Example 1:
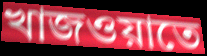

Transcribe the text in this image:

খাজওয়াতে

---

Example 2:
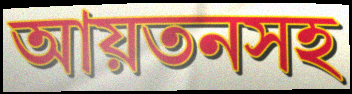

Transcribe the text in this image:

আয়তনসহ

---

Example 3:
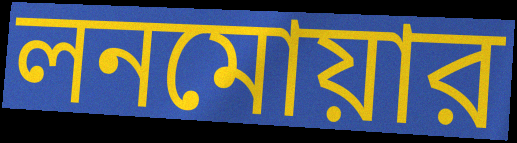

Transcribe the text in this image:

লনমোয়ার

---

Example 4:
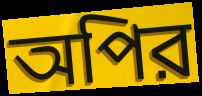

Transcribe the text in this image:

অপির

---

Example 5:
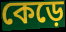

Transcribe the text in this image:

কেড়ে